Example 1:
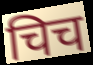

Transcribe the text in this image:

चिच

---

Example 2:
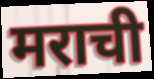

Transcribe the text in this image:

मराची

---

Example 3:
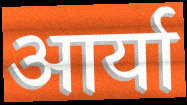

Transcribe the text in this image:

आर्या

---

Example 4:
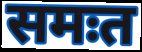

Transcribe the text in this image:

समःत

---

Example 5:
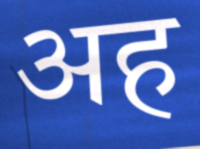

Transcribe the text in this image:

अह